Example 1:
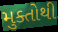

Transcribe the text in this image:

મુક્તોથી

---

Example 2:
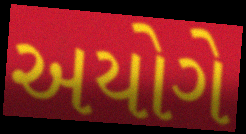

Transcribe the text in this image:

અયોગે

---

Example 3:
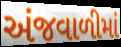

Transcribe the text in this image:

અંજવાળીમાં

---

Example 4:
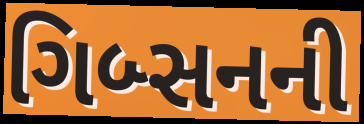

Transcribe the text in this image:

ગિબ્સનની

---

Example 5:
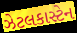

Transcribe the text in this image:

ઝેટલકાસ્ટેન